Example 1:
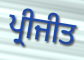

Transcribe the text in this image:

ਪ੍ਰੀਜੀਤ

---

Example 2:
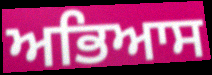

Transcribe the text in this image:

ਅਭਿਆਸ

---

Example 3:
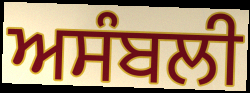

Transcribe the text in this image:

ਅਸੰਬਲੀ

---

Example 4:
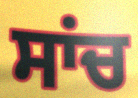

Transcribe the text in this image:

ਸਾਂਚ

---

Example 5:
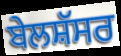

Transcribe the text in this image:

ਬੇਲਸ਼ੱਸਰ